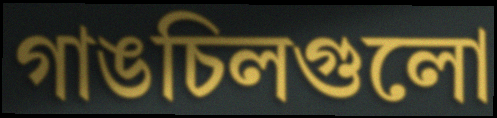
গাঙচিলগুলো